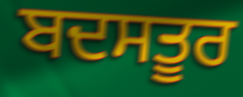
ਬਦਸਤੂਰ